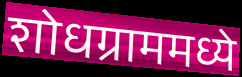
शोधग्राममध्ये